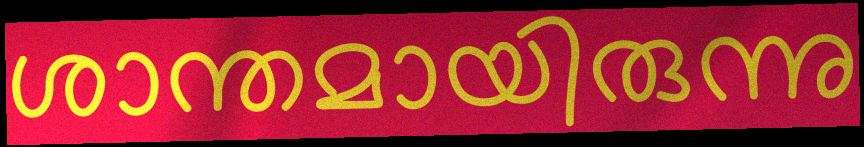
ശാന്തമായിരുന്നു